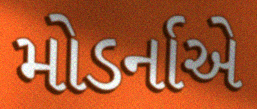
મોડર્નાએ